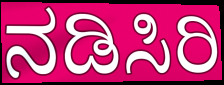
ನಡಿಸಿರಿ